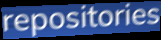
repositories